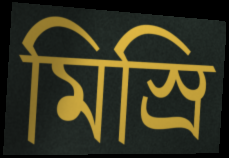
মিস্রি